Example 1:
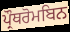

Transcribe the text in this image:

ਪ੍ਰੌਥਰੋਮਬਿਨ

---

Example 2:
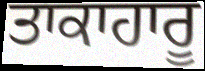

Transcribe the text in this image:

ਤਾਕਾਹਾਰੂ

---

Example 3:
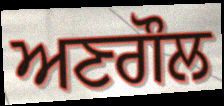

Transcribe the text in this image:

ਅਣਗੌਲ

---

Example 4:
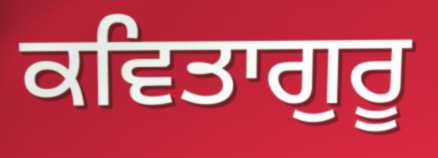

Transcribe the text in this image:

ਕਵਿਤਾਗੁਰੂ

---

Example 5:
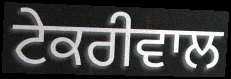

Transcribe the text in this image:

ਟੇਕਰੀਵਾਲ